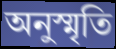
অনুস্মৃতি